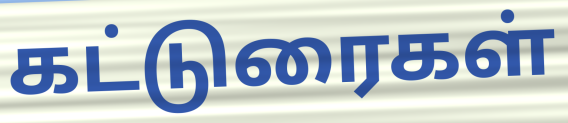
கட்டுரைகள்